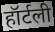
हॉर्टली